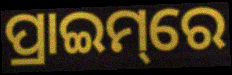
ପ୍ରାଇମ୍‌ରେ